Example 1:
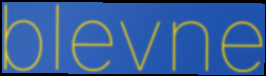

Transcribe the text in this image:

blevne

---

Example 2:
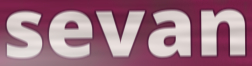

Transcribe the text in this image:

sevan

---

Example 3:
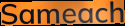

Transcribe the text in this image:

Sameach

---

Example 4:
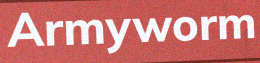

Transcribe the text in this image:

Armyworm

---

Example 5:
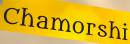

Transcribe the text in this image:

Chamorshi